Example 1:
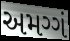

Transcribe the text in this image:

અમગ્ગં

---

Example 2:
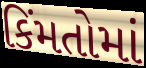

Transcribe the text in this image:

કિંમતોમાં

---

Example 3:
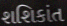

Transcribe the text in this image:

શશિકાંત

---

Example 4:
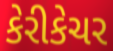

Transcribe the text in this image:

કેરીકેચર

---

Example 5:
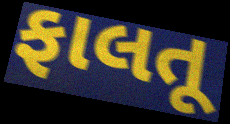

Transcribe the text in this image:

ફાલતૂ